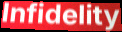
Infidelity